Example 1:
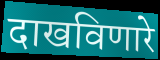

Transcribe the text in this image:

दाखविणारे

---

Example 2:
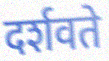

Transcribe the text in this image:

दर्शवते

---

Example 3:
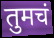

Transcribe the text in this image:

तुमचं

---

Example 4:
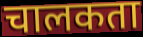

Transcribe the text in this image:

चालकता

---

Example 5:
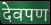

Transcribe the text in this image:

देवपण